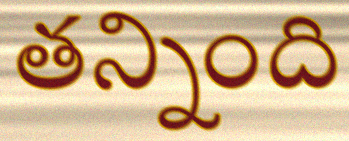
తన్నింది